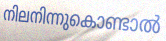
നിലനിന്നുകൊണ്ടാൽ